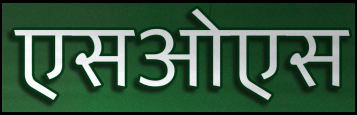
एसओएस